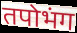
तपोभंग